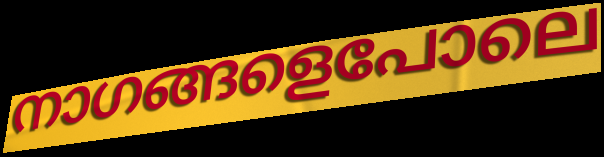
നാഗങ്ങളെപോലെ